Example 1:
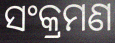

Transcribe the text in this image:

ସଂକ୍ରମଣ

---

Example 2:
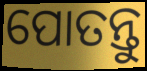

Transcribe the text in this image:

ପୋତନ୍ତୁ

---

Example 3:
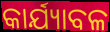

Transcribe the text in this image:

କାର୍ଯ୍ୟାବଳ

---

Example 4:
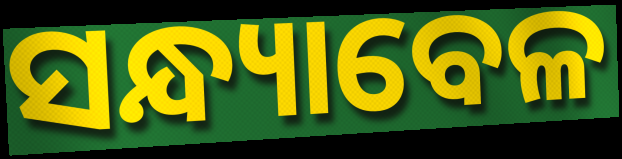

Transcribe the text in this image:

ସନ୍ଧ୍ୟାବେଳ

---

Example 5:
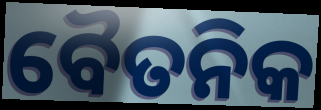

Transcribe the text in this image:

ବୈତନିକ